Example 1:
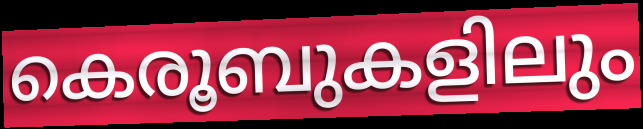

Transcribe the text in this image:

കെരൂബുകളിലും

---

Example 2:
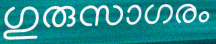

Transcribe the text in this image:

ഗുരുസാഗരം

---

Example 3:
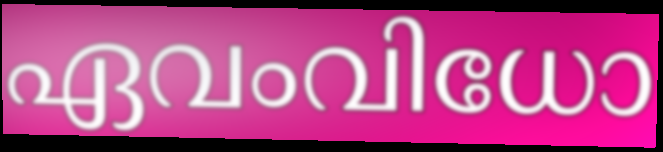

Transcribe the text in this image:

ഏവംവിധോ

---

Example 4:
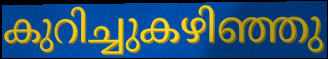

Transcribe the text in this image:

കുറിച്ചുകഴിഞ്ഞു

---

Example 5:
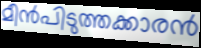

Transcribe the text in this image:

മീൻപിടുത്തക്കാരൻ